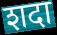
शदा